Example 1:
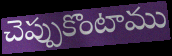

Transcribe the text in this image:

చెప్పుకొంటాము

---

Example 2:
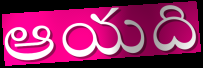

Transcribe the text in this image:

ఆయది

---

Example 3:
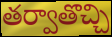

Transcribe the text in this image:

తర్వాతొచ్చి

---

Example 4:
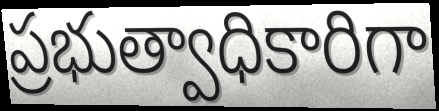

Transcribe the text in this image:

ప్రభుత్వాధికారిగా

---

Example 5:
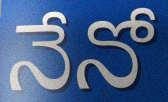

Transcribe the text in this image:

నేనో